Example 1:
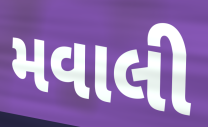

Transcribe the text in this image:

મવાલી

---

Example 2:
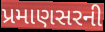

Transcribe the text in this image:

પ્રમાણસરની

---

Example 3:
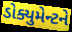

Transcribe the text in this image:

ડોક્યુમેન્ટને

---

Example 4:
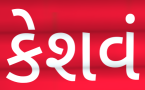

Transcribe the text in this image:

કેશવં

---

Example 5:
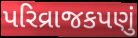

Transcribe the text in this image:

પરિવ્રાજકપણું